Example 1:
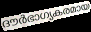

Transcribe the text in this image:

ദൗർഭാഗ്യകരമായ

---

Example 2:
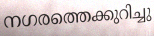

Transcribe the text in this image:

നഗരത്തെക്കുറിച്ചു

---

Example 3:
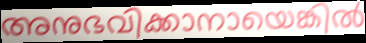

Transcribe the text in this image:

അനുഭവിക്കാനായെങ്കിൽ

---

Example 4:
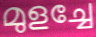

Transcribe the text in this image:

മുളച്ചേ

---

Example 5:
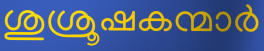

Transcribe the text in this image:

ശുശ്രൂഷകന്മാർ